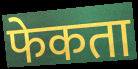
फेकता